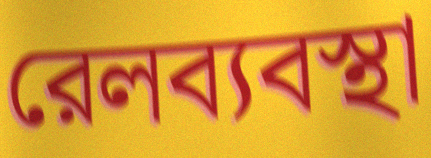
রেলব্যবস্থা